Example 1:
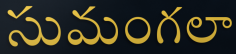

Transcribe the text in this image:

సుమంగలా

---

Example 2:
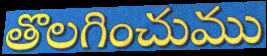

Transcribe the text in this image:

తొలగించుము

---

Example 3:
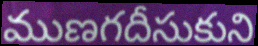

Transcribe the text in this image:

ముణగదీసుకుని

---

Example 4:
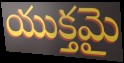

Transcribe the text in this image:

యుక్తమై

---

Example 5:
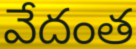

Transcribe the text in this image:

వేదంత